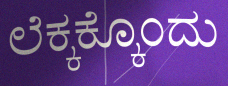
ಲೆಕ್ಕಕ್ಕೊಂದು